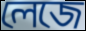
লেজে